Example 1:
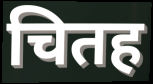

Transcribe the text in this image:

चितह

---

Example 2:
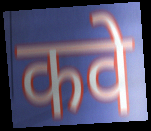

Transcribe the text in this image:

कवे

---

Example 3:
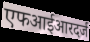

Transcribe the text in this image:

एफआईआरदर्ज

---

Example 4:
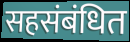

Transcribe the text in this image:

सहसंबंधित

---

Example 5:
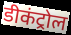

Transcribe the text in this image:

डीकंट्रोल